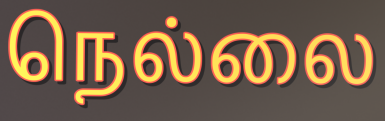
நெல்லை